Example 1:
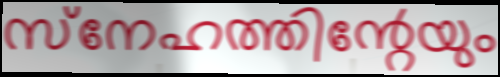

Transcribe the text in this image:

സ്‌നേഹത്തിന്റേയും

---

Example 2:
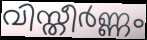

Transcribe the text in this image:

വിസ്തീർണ്ണം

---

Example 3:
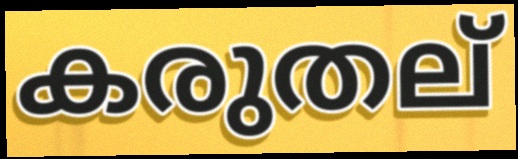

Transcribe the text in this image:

കരുതല്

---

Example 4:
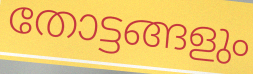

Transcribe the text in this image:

തോട്ടങ്ങളും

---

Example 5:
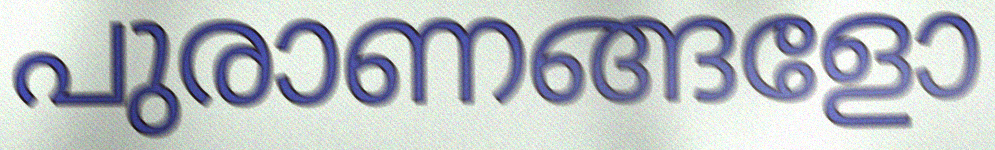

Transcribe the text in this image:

പുരാണങ്ങളോ